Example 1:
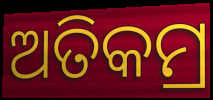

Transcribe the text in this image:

ଅତିକମ୍ର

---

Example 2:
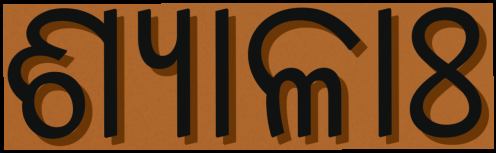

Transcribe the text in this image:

ଶ୍ୟାଳାଃ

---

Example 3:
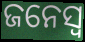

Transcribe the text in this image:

ଜନେସ୍ୱ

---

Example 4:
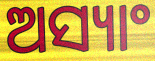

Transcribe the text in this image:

ଅସ୍ୟାଂ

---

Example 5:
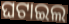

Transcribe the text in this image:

ଘଟାଇଲ